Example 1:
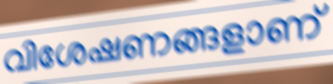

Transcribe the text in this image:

വിശേഷണങ്ങളാണ്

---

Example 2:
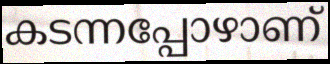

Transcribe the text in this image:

കടന്നപ്പോഴാണ്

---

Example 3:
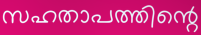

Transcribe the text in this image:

സഹതാപത്തിന്റെ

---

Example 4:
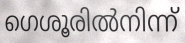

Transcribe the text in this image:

ഗെശൂരിൽനിന്ന്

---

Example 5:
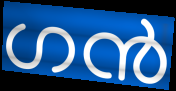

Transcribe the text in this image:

ഗൻ